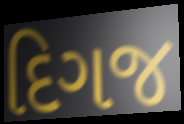
દિગજ